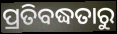
ପ୍ରତିବଦ୍ଧତାରୁ